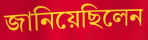
জানিয়েছিলেন